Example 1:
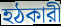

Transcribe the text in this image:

হঠকারী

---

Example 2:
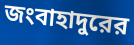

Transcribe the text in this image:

জংবাহাদুরের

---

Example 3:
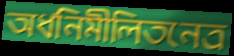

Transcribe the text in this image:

অর্ধনিমীলিতনেত্র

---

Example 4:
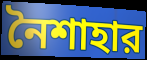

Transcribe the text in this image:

নৈশাহার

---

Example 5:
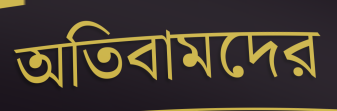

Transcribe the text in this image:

অতিবামদের